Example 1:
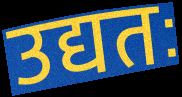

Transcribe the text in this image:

उद्यतः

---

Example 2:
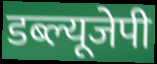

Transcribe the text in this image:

डब्ल्यूजेपी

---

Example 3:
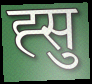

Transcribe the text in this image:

ह्सु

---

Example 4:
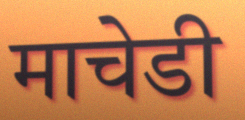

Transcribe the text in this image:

माचेडी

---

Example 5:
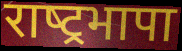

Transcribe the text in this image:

राष्ट्रभापा